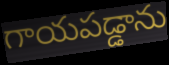
గాయపడ్డాను